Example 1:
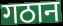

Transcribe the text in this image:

गठान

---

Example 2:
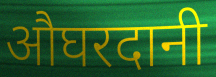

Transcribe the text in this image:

औघरदानी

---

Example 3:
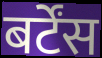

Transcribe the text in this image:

बर्टेंस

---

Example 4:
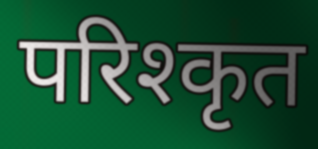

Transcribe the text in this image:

परिश्कृत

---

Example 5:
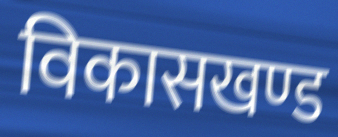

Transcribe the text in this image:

विकासखण्‍ड